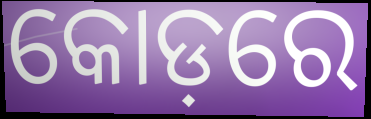
କୋଡ଼ରେ